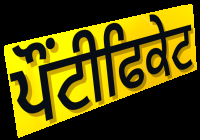
ਪੌਂਟੀਫਿਕੇਟ